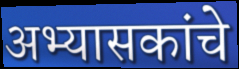
अभ्यासकांचे